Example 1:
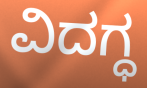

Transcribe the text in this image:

ವಿದಗ್ಧ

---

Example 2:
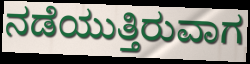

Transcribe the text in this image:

ನಡೆಯುತ್ತಿರುವಾಗ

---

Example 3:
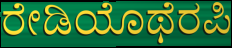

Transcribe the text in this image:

ರೇಡಿಯೊಥೆರಪಿ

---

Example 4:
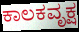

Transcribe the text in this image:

ಕಾಲಕವೃಕ್ಷ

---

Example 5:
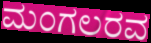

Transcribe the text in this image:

ಮಂಗಲರವ